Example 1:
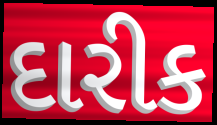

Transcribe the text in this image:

દારીક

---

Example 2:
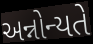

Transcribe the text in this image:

અન્નોન્યતે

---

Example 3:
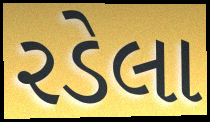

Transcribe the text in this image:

રડેલા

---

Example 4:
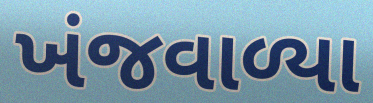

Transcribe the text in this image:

ખંજવાળ્યા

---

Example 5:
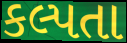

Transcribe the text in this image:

કલ્પતા